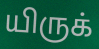
யிருக்